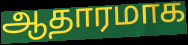
ஆதாரமாக